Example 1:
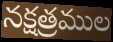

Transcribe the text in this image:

నక్షత్రముల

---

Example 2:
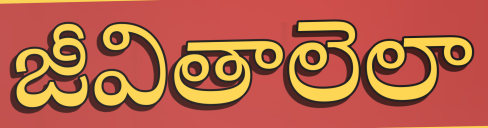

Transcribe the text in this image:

జీవితాలెలా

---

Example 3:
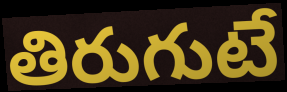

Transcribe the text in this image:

తిరుగుటే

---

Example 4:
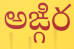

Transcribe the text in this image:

అఙ్గిర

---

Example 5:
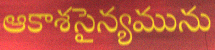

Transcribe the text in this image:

ఆకాశసైన్యమును